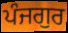
ਪੰਜਗੁਰ